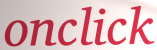
onclick